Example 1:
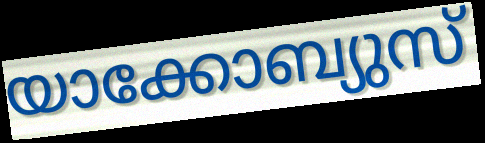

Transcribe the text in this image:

യാക്കോബ്യുസ്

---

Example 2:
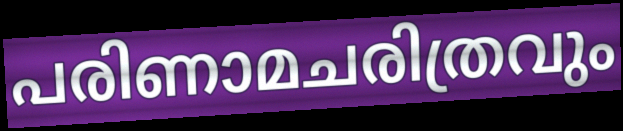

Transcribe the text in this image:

പരിണാമചരിത്രവും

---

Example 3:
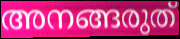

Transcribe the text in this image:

അനങ്ങരുത്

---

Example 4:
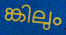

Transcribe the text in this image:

ങ്കിലും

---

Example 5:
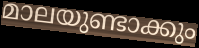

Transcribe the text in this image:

മാലയുണ്ടാക്കും